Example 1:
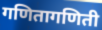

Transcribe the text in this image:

गणितागणिती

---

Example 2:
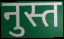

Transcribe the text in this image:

नुस्त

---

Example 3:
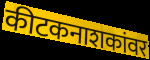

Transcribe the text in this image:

कीटकनाशकांवर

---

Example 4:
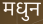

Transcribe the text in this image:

मधुन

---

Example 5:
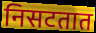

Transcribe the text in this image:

निसटतात